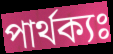
পার্থক্যঃ